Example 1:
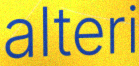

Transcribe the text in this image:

alteri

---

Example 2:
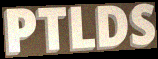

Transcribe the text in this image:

PTLDS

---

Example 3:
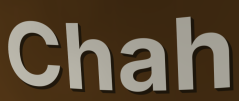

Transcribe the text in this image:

Chah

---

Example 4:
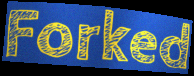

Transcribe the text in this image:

Forked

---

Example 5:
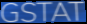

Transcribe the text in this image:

GSTAT